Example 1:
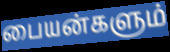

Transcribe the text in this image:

பையன்களும்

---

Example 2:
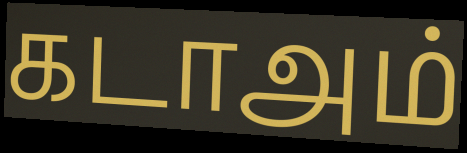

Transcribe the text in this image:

கடாஅம்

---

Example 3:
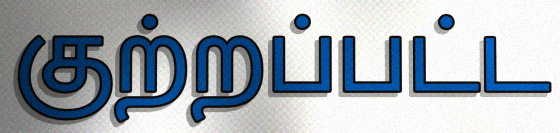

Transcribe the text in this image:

குற்றப்பட்ட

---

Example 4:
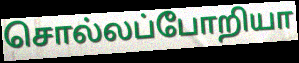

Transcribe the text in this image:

சொல்லப்போறியா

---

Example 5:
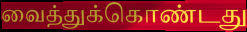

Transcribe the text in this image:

வைத்துக்கொண்டது